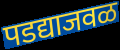
पडद्याजवळ